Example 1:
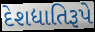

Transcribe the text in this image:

દેશદ્યાતિરૂપે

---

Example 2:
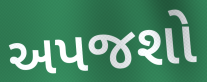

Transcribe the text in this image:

અપજશો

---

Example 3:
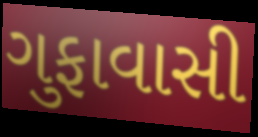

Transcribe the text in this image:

ગુફાવાસી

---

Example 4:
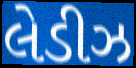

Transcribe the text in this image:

લેડીઝ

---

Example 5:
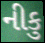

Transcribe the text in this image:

નીકુ